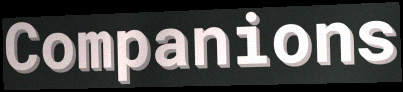
Companions